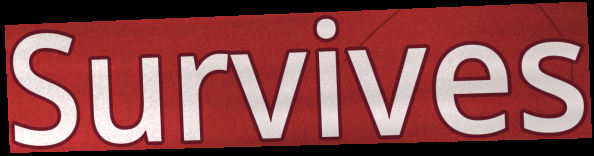
Survives